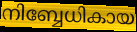
നിബ്ബേധികായ